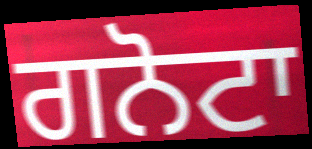
ਗਨੋਟਾ